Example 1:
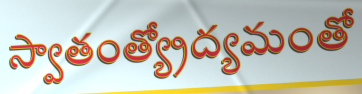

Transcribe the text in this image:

స్వాతంత్య్రోద్యమంతో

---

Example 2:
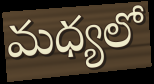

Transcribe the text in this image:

మధ్యలో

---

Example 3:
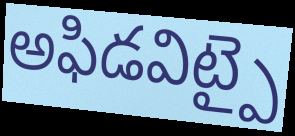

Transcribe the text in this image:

అఫిడవిట్పై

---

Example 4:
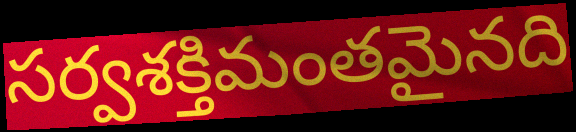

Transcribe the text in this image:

సర్వశక్తిమంతమైనది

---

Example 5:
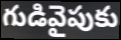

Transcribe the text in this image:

గుడివైపుకు